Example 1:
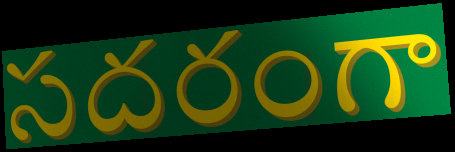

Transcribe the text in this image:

సదరంగా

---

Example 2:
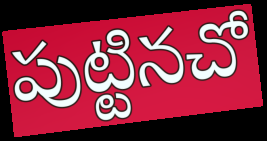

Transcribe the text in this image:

పుట్టినచో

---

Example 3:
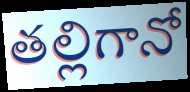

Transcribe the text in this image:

తల్లిగానో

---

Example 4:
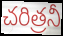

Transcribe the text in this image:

చరిత్రనీ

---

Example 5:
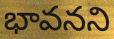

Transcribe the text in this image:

భావనని